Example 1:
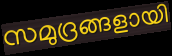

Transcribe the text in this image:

സമുദ്രങ്ങളായി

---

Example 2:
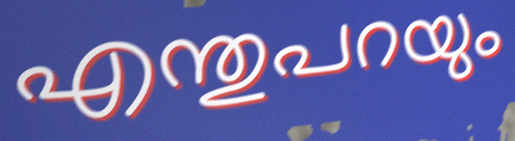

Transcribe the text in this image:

എന്തുപറയും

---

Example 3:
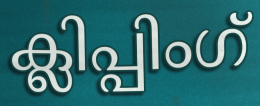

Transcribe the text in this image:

ക്ലിപ്പിംഗ്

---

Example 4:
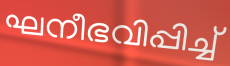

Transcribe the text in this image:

ഘനീഭവിപ്പിച്ച്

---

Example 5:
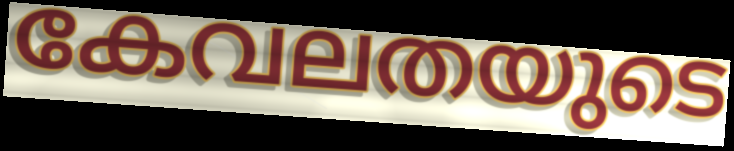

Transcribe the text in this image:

കേവലതയുടെ